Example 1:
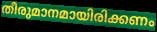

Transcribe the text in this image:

തീരുമാനമായിരിക്കണം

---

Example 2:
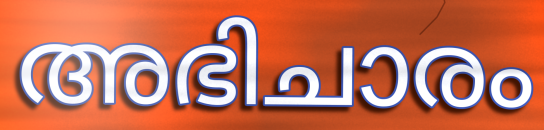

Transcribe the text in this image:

അഭിചാരം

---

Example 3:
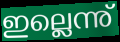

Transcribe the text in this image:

ഇല്ലെന്നു്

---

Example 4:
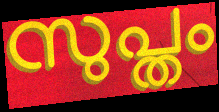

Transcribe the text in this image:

സുപ്തം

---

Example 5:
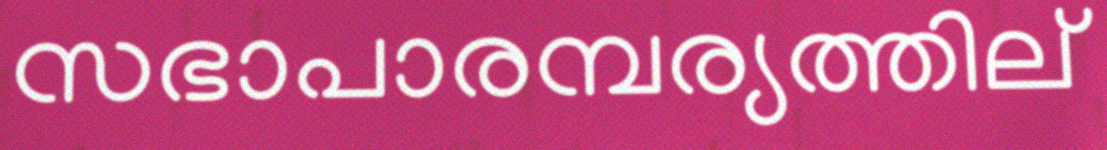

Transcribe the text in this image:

സഭാപാരമ്പര്യത്തില്